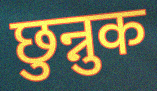
छुन्नुक